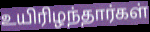
உயிரிழந்தார்கள்